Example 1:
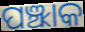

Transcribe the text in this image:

ପଞ୍ଝାକ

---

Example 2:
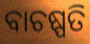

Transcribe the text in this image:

ବାଚଷ୍ପତି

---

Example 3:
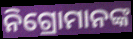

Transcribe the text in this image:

ନିଗ୍ରୋମାନଙ୍କ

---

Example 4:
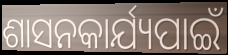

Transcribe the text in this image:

ଶାସନକାର୍ଯ୍ୟପାଇଁ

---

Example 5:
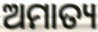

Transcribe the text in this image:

ଅମାତ୍ୟ